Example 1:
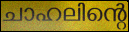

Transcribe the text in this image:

ചാഹലിന്റെ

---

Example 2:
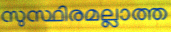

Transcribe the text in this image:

സുസ്ഥിരമല്ലാത്ത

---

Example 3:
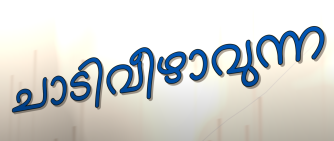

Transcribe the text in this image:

ചാടിവീഴാവുന്ന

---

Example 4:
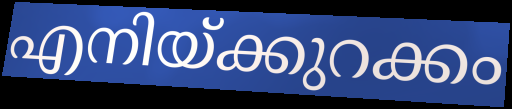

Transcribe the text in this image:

എനിയ്ക്കുറക്കം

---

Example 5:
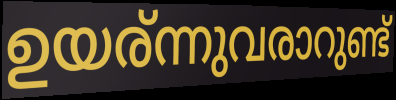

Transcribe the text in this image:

ഉയര്ന്നുവരാറുണ്ട്